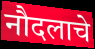
नौदलाचे